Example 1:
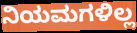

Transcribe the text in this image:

ನಿಯಮಗಳಿಲ್ಲ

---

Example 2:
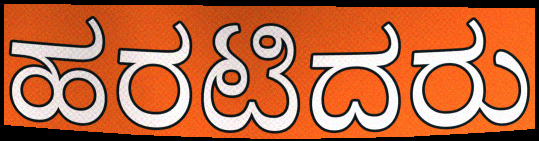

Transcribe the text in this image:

ಹರಟಿದರು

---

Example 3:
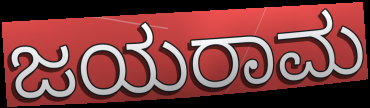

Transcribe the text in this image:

ಜಯರಾಮ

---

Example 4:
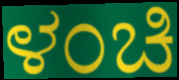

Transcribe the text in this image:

ಳಂಚಿ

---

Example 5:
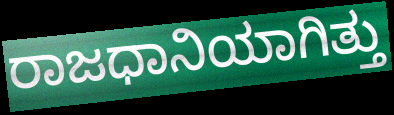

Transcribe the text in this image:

ರಾಜಧಾನಿಯಾಗಿತ್ತು